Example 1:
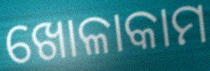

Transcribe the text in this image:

ଖୋଳାକାମ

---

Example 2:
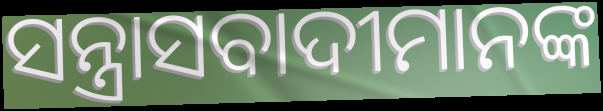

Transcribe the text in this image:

ସନ୍ତ୍ରାସବାଦୀମାନଙ୍କ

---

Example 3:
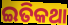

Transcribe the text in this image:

ଇତିକଥା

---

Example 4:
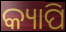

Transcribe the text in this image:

କ୍ୟାପି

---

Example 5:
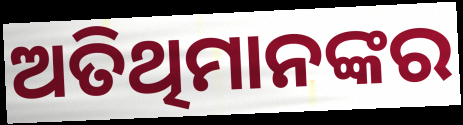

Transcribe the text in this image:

ଅତିଥିମାନଙ୍କର